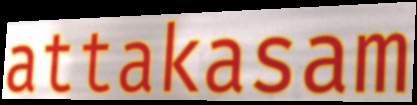
attakasam